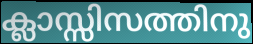
ക്ലാസ്സിസത്തിനു